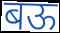
बऊ